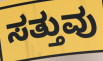
ಸತ್ತುವು